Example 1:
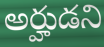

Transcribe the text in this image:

అర్హుడని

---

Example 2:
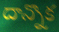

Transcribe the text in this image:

దాన్నొక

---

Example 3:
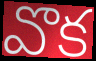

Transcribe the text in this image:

వొక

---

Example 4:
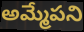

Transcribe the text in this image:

అమ్మేపని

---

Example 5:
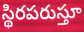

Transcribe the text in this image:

స్థిరపరుస్తూ